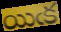
యిఁక